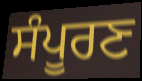
ਸੰਪੂਰਣ